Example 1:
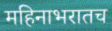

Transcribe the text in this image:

महिनाभरातच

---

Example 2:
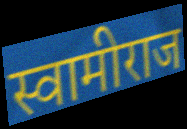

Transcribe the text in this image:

स्वामीराज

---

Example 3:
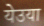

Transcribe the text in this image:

येउया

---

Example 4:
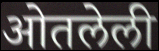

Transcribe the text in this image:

ओतलेली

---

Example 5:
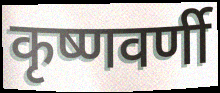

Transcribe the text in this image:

कृष्णवर्णी